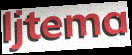
Ijtema